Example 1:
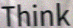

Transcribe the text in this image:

Think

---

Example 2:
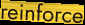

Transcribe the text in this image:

reinforce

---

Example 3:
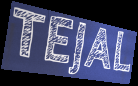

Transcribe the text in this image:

TEJAL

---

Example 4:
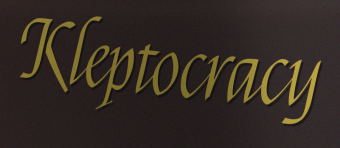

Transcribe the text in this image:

Kleptocracy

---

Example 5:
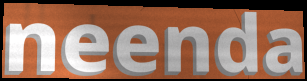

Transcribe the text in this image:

neenda